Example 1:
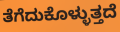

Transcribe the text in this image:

ತೆಗೆದುಕೊಳ್ಳುತ್ತದೆ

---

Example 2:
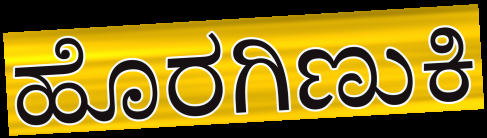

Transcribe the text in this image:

ಹೊರಗಿಣುಕಿ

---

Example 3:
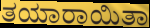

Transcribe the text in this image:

ತಯಾರಾಯಿತಾ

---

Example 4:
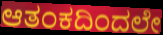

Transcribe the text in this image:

ಆತಂಕದಿಂದಲೇ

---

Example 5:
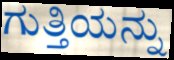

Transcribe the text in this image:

ಗುತ್ತಿಯನ್ನು